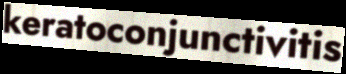
keratoconjunctivitis